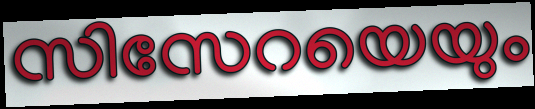
സിസേറയെയും